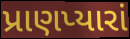
પ્રાણપ્યારાં